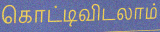
கொட்டிவிடலாம்